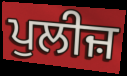
ਪੁਲੀਜ਼